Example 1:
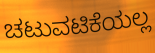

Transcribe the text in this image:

ಚಟುವಟಿಕೆಯಲ್ಲ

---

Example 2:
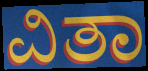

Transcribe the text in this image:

ವಿತಾ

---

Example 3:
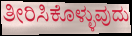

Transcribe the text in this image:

ತೀರಿಸಿಕೊಳ್ಳುವುದು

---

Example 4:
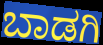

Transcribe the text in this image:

ಬಾಡಗಿ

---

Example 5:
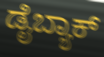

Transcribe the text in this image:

ಡೈಬ್ಯಾಕ್